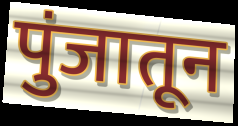
पुंजातून